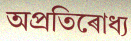
অপ্ৰতিৰোধ্য